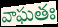
వాఘతః